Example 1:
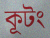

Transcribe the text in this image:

কূটং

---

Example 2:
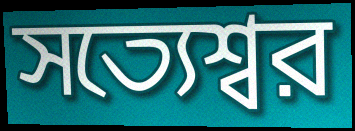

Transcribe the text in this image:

সত্যেশ্বর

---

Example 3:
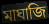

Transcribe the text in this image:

মাঘাজি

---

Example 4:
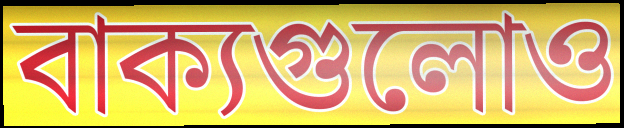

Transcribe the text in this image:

বাক্যগুলোও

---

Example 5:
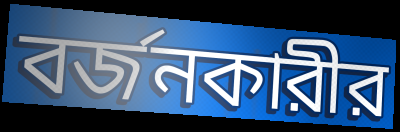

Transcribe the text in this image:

বর্জনকারীর